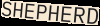
SHEPHERD